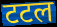
टटल